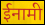
ईनामी